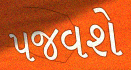
પજવશે